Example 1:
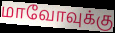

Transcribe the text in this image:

மாவோவுக்கு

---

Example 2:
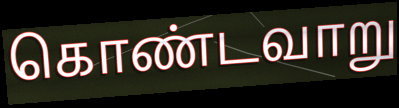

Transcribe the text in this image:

கொண்டவாறு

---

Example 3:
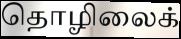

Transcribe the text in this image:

தொழிலைக்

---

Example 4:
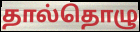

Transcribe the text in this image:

தால்தொழு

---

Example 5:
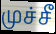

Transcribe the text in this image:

முச்சீ